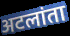
अटलांता